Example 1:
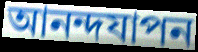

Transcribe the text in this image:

আনন্দযাপন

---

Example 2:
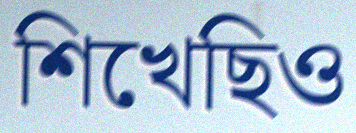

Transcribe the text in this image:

শিখেছিও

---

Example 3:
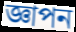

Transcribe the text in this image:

জ্ঞাপন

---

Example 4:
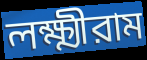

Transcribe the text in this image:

লক্ষ্মীরাম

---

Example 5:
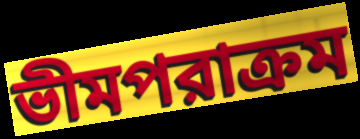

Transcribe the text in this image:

ভীমপরাক্রম